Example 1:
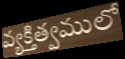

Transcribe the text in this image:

వ్యక్తిత్వములో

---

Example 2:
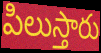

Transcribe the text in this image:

పిలుస్తారు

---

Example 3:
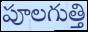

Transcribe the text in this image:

పూలగుత్తి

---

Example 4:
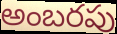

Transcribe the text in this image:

అంబరపు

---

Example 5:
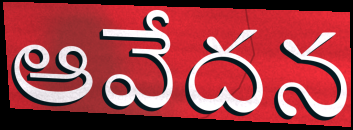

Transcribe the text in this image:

ఆవేదన